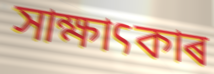
সাক্ষাৎকাৰ